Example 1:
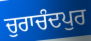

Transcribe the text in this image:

ਚੁਰਾਚੰਦਪੁਰ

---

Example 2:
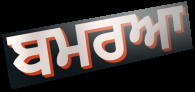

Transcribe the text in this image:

ਬਮਰਆ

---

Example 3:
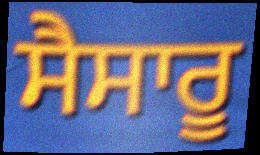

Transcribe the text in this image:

ਸੈਸਾਰੂ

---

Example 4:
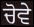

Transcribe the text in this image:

ਚੋਵੇ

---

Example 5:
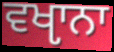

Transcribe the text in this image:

ਵਖੵਾਨਾ